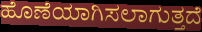
ಹೊಣೆಯಾಗಿಸಲಾಗುತ್ತದೆ